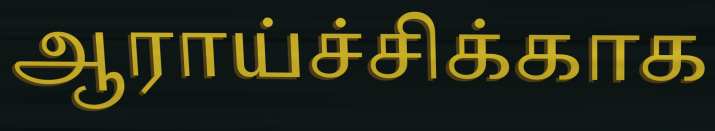
ஆராய்ச்சிக்காக